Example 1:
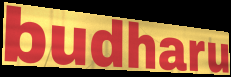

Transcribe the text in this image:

budharu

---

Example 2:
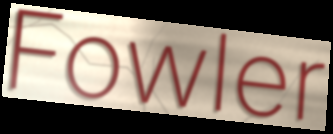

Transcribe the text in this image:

Fowler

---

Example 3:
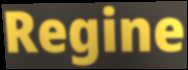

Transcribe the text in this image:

Regine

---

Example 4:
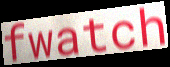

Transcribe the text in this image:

fwatch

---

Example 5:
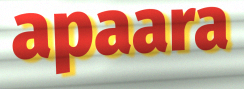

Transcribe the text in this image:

apaara